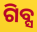
ଗିବ୍ସ